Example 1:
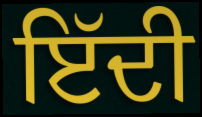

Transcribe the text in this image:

ਇੱਦੀ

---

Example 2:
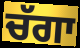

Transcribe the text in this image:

ਚੱਗਾ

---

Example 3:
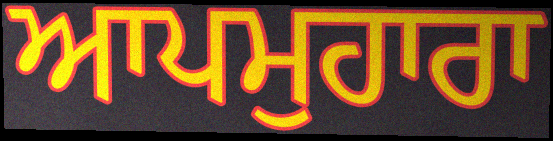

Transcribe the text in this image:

ਆਪਮੁਹਾਰਾ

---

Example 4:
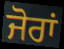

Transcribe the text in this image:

ਜੋਰਾਂ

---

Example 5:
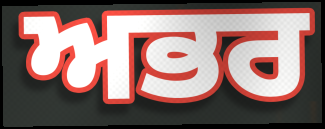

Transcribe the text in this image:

ਅਭਰ